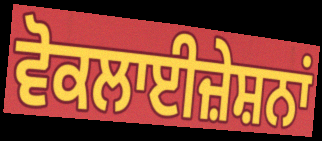
ਵੋਕਲਾਈਜ਼ੇਸ਼ਨਾਂ